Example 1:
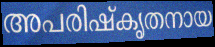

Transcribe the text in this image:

അപരിഷ്കൃതനായ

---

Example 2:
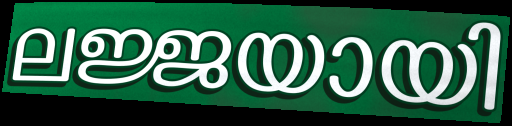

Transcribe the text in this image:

ലജ്ജയായി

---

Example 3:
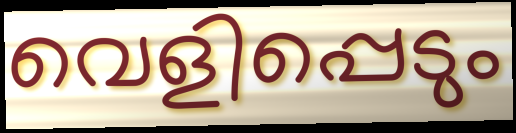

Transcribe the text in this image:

വെളിപ്പെടും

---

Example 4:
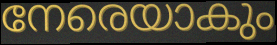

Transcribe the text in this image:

നേരെയാകും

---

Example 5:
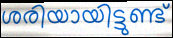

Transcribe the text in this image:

ശരിയായിട്ടുണ്ട്